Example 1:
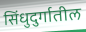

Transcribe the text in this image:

सिंधुदुर्गातील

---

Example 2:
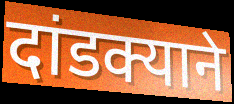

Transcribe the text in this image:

दांडक्याने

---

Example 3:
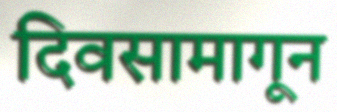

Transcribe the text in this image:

दिवसामागून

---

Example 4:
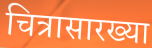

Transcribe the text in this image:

चित्रासारख्या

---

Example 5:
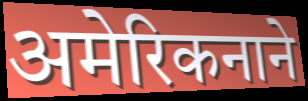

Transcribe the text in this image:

अमेरिकनाने